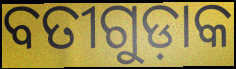
ବତୀଗୁଡ଼ାକ